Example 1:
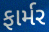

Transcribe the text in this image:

ફાર્મર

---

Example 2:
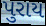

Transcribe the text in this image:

પુરાય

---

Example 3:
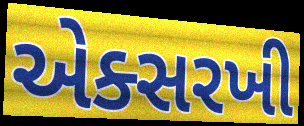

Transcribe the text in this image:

એક્સરખી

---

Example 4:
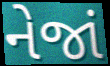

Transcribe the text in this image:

નેજાં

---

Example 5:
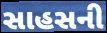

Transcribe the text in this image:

સાહસની